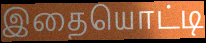
இதையொட்டி